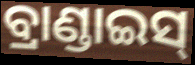
ବ୍ରାଣ୍ଡାଇସ୍